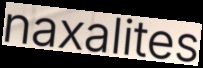
naxalites